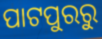
ପାଟପୁରରୁ